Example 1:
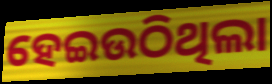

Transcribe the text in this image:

ହେଇଉଠିଥିଲା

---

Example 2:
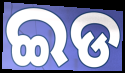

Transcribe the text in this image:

ଇଡ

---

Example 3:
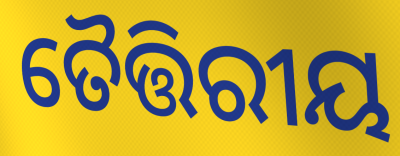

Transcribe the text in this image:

ତୈତ୍ତିରୀୟ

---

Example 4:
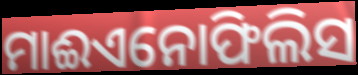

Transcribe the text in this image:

ମାଈଏନୋଫିଲିସ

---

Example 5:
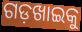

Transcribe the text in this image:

ଗଡ଼ଖାଇକୁ